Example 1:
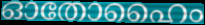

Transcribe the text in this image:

ഓതോഹൈം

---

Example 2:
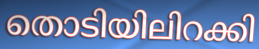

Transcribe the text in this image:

തൊടിയിലിറക്കി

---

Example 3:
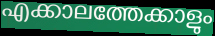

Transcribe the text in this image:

എക്കാലത്തേക്കാളും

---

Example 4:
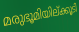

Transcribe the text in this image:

മരുഭൂമിയില്ക്കൂടി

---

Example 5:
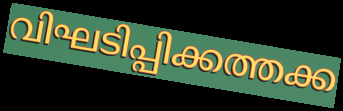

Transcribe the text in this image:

വിഘടിപ്പിക്കത്തക്ക